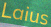
Laius